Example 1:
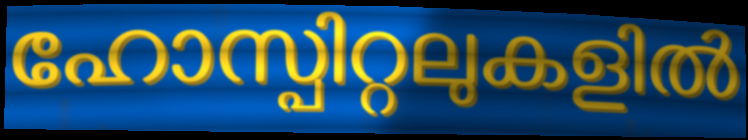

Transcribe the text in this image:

ഹോസ്പിറ്റലുകളിൽ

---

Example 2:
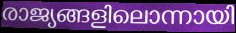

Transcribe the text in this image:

രാജ്യങ്ങളിലൊന്നായി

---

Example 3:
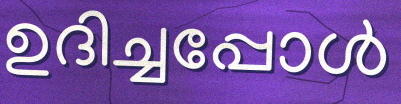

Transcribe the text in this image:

ഉദിച്ചപ്പോൾ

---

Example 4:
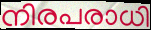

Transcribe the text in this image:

നിരപരാധി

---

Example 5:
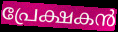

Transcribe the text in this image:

പ്രേക്ഷകൻ